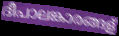
ദീപാലങ്കാരങ്ങള്